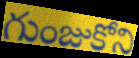
గుంజుకోని